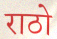
राठो